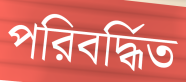
পরিবর্দ্ধিত